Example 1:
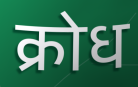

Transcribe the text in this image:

क्रोध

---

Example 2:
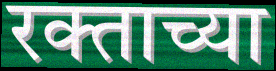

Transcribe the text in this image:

रक्ताच्या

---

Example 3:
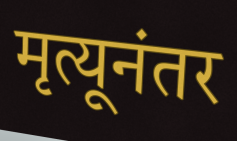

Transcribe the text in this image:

मृत्यूनंतर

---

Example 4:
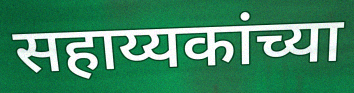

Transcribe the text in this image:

सहाय्यकांच्या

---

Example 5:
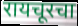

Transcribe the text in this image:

रायचूरचा